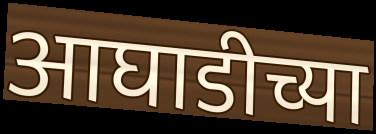
आघाडीच्‍या